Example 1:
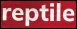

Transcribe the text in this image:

reptile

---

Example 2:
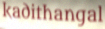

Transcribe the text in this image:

kadithangal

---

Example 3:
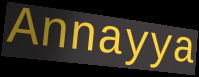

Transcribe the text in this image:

Annayya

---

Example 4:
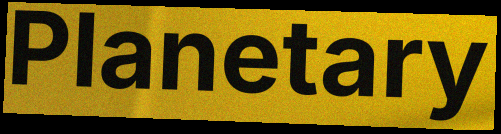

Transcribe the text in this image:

Planetary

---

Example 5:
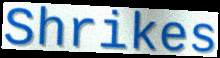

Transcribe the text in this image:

Shrikes